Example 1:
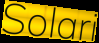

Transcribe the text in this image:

Solari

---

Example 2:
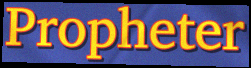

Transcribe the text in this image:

Propheter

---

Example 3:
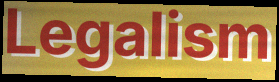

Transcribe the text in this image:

Legalism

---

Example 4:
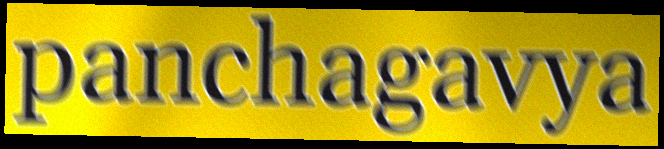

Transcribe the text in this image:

panchagavya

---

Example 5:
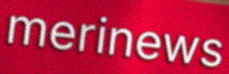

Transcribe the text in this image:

merinews